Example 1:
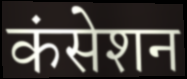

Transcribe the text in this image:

कंसेशन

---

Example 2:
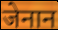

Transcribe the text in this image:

जेनान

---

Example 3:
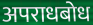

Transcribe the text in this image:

अपराधबोध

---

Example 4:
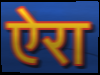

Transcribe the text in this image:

ऐरा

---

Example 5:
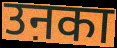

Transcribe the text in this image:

उऩका